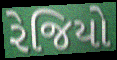
રેજિયો